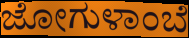
ಜೋಗುಳಾಂಬೆ